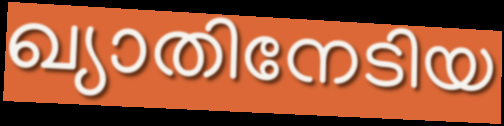
ഖ്യാതിനേടിയ